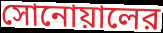
সোনোয়ালের